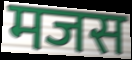
मजस